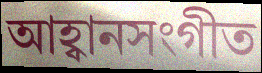
আহ্বানসংগীত